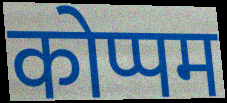
कोप्पम